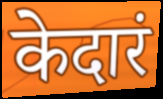
केदारं